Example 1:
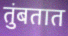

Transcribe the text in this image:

तुंबतात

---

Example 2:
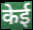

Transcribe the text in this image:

केई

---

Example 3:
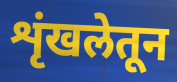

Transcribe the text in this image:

शृंखलेतून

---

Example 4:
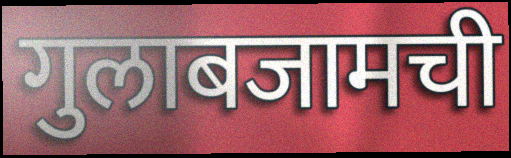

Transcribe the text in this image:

गुलाबजामची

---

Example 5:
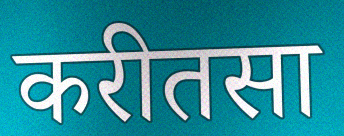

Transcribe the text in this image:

करीतसा